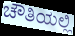
ಚೌತಿಯಲ್ಲಿ